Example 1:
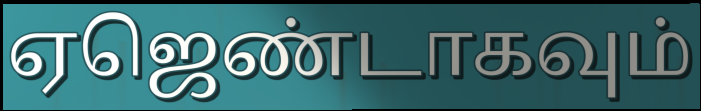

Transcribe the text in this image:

ஏஜெண்டாகவும்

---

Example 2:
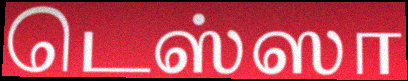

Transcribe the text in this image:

டெஸ்ஸா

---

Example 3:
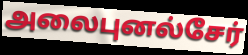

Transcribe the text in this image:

அலைபுனல்சேர்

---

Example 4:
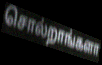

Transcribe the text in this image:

சொல்றாங்களா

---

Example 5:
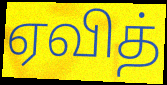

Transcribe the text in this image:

ஏவித்